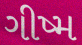
ગીષ્મ